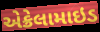
એક્રેલામાઇડ